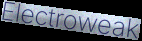
Electroweak